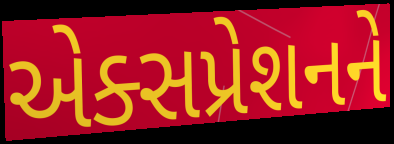
એક્સપ્રેશનને